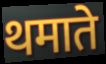
थमाते